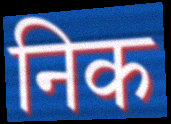
निक